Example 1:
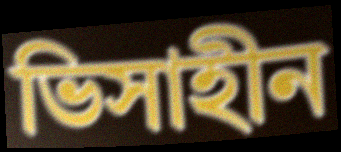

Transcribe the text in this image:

ভিসাহীন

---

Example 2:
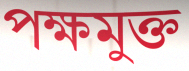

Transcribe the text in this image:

পক্ষমুক্ত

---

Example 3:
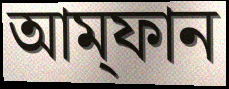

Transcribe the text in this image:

আম্‌ফান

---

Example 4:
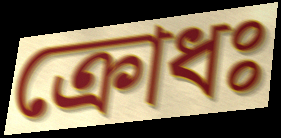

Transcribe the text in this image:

ক্রোধঃ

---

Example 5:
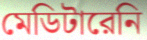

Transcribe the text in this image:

মেডিটারেনি